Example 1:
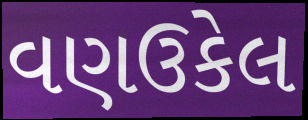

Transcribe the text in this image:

વણઉકેલ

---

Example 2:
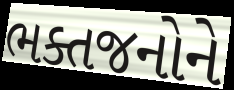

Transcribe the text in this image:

ભક્તજનોને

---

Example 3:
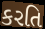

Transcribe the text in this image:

કરતિ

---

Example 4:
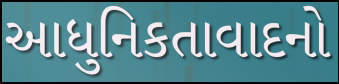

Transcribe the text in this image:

આધુનિકતાવાદનો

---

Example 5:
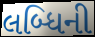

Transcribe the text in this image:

લબ્ધિની